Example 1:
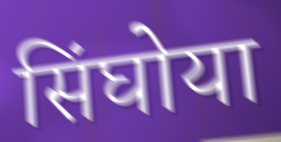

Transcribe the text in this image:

सिंघोया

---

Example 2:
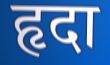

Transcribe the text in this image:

हृदा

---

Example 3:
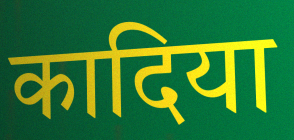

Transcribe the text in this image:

कादिया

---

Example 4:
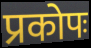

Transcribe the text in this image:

प्रकोपः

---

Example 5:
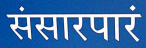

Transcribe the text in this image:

संसारपारं